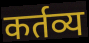
कर्तव्य